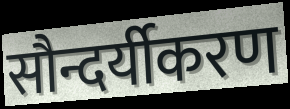
सौन्दर्यीकरण